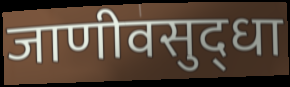
जाणीवसुद्धा